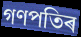
গণপতিৰ